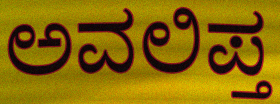
ಅವಲಿಪ್ತ